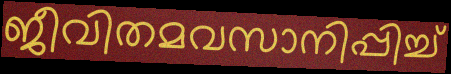
ജീവിതമവസാനിപ്പിച്ച്